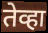
तेव्हा